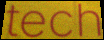
tech